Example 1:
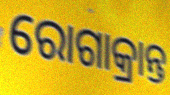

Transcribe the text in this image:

ରୋଗାକ୍ରାନ୍ତ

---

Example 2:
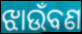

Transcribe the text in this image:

ଝାଉଁବଣ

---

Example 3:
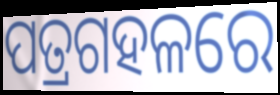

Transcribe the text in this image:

ପତ୍ରଗହଳରେ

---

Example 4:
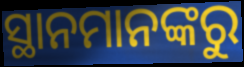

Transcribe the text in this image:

ସ୍ଥାନମାନଙ୍କରୁ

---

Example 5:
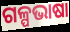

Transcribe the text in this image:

ଗଳ୍ପଭାଷା